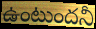
ఉంటుందనీ